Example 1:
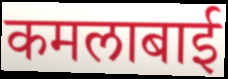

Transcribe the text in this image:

कमलाबाई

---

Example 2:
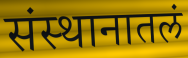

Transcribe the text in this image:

संस्थानातलं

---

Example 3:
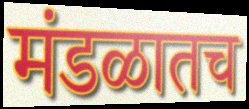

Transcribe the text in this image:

मंडळातच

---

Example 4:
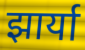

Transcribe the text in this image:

झार्या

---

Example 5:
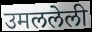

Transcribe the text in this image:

उमललेली